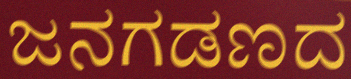
ಜನಗಡಣದ